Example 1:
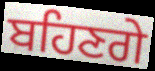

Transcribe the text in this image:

ਬਹਿਣਗੇ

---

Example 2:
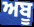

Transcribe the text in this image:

ਅਬੂ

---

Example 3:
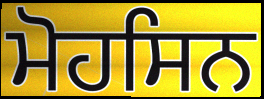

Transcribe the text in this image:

ਮੋਹਸਿਨ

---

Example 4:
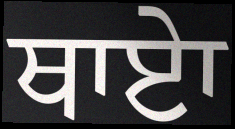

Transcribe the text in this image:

ਥਾਏਾ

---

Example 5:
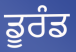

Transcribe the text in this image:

ਡੂਰੰਡ